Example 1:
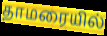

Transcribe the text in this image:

தாமரையில்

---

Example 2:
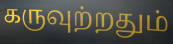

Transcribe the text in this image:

கருவுற்றதும்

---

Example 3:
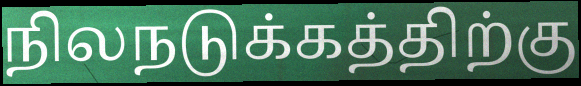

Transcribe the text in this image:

நிலநடுக்கத்திற்கு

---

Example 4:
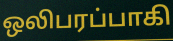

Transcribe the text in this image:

ஒலிபரப்பாகி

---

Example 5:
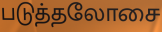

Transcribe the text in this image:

படுத்தலோசை